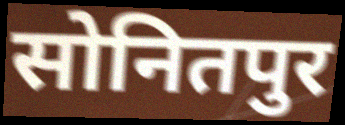
सोनितपुर